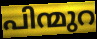
പിന്മുറ